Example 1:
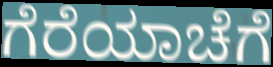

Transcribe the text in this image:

ಗೆರೆಯಾಚೆಗೆ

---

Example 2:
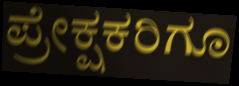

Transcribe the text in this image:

ಪ್ರೇಕ್ಷಕರಿಗೂ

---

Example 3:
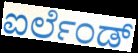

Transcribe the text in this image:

ಐರ್ಲೆಂಡ್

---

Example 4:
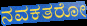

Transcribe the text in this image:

ನವಕತರೋ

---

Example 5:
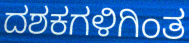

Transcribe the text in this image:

ದಶಕಗಳಿಗಿಂತ